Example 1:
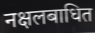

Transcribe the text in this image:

नक्षलबाधित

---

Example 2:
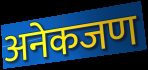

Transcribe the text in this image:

अनेकजण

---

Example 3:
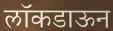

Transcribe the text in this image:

लॉकडाऊन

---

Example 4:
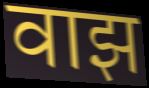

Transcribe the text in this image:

वाझ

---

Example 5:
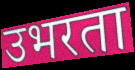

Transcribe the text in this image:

उभरता